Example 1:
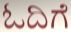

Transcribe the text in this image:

ಓದಿಗೆ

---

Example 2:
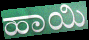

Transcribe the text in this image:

ಹಾಯಿ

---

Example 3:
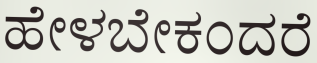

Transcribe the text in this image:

ಹೇಳಬೇಕಂದರೆ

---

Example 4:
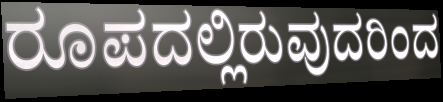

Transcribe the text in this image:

ರೂಪದಲ್ಲಿರುವುದರಿಂದ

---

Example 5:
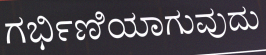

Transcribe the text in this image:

ಗರ್ಭಿಣಿಯಾಗುವುದು